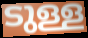
ടുള്ള